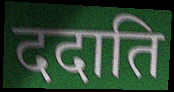
ददाति